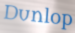
Dunlop